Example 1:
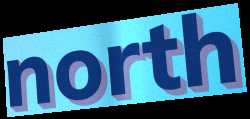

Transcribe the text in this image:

north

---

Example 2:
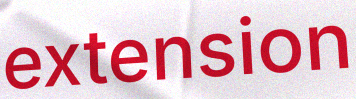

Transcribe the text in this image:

extension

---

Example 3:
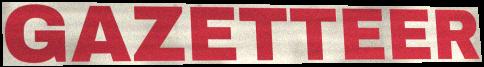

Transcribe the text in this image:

GAZETTEER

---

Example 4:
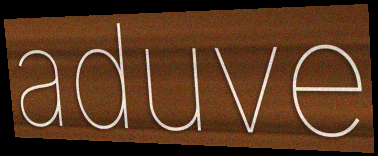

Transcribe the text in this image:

aduve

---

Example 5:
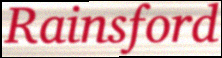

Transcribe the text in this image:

Rainsford